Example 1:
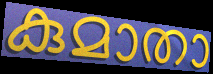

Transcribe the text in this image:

കുമാതാ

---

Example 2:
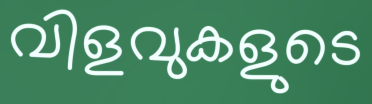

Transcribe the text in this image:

വിളവുകളുടെ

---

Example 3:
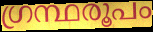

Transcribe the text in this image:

ഗ്രന്ഥരൂപം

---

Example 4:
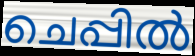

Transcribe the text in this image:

ചെപ്പിൽ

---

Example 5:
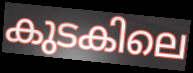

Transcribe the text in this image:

കുടകിലെ